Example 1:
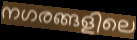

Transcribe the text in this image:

നഗരങ്ങളിലെ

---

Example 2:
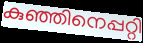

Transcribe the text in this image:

കുഞ്ഞിനെപ്പറ്റി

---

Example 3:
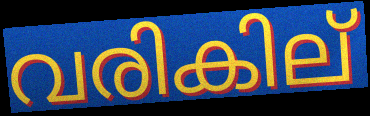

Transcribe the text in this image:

വരികില്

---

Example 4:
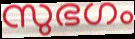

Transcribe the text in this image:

സുഭഗം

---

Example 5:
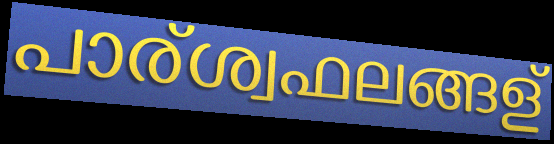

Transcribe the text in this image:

പാര്ശ്വഫലങ്ങള്